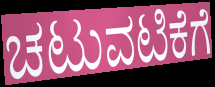
ಚಟುವಟಿಕೆಗೆ